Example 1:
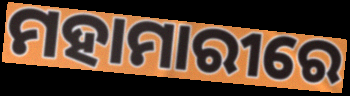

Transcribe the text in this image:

ମହାମାରୀରେ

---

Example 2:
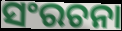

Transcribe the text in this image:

ସଂରଚନା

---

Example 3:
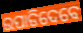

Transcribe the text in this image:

ଉପାଡିଦେବେ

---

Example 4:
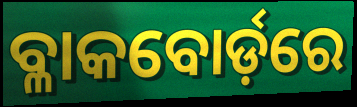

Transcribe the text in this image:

ବ୍ଳାକବୋର୍ଡ଼ରେ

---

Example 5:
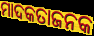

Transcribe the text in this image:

ମାଦକତାଜନକ